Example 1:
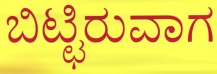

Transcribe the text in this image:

ಬಿಟ್ಟಿರುವಾಗ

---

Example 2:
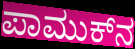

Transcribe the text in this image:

ಪಾಮುಕ್‍ನ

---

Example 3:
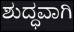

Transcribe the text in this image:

ಶುದ್ಧವಾಗಿ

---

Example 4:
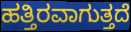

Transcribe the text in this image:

ಹತ್ತಿರವಾಗುತ್ತದೆ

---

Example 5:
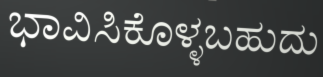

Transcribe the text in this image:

ಭಾವಿಸಿಕೊಳ್ಳಬಹುದು